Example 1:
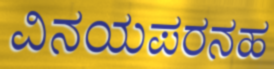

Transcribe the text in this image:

ವಿನಯಪರನಹ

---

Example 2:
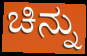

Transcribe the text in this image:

ಚಿನ್ನು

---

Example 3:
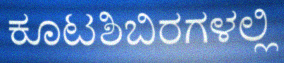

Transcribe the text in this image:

ಕೂಟಶಿಬಿರಗಳಲ್ಲಿ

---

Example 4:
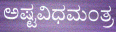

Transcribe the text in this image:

ಅಷ್ಟವಿಧಮಂತ್ರ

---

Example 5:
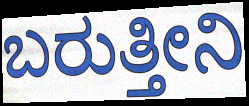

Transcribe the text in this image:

ಬರುತ್ತೀನಿ